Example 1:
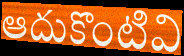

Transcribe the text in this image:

ఆదుకొంటివి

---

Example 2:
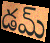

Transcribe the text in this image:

డమ్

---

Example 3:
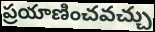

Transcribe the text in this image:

ప్రయాణించవచ్చు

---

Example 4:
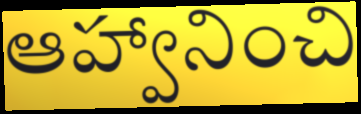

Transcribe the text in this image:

ఆహ్వానించి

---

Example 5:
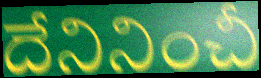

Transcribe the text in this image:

దేనినించీ